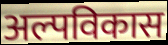
अल्पविकास